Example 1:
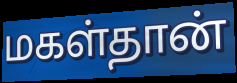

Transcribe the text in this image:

மகள்தான்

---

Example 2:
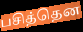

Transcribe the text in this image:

பசித்தென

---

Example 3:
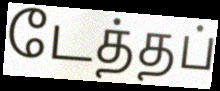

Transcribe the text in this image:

டேத்தப்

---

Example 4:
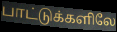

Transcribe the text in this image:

பாட்டுக்களிலே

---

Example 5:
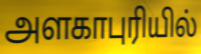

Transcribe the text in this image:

அளகாபுரியில்